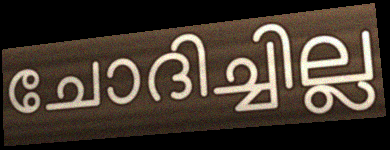
ചോദിച്ചില്ല